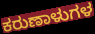
ಕರುಣಾಳುಗಳ